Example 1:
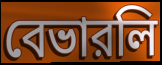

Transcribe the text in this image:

বেভারলি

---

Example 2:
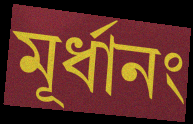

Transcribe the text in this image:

মূর্ধানং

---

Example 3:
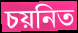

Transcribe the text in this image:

চয়নিত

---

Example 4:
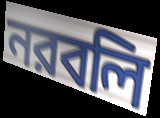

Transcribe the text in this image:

নরবলি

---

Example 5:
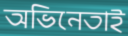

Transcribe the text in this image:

অভিনেতাই